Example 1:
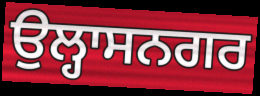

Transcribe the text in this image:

ਉਲ੍ਹਾਸਨਗਰ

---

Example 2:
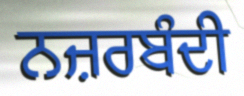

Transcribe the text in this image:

ਨਜ਼ਰਬੰਦੀ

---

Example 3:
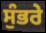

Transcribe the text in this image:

ਸੁੰਭਰੇ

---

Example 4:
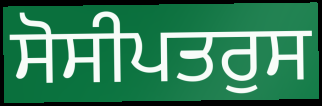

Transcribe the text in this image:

ਸੋਸੀਪਤਰੁਸ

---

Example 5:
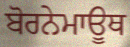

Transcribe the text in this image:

ਬੋਰਨੇਮਾਊਥ